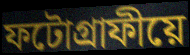
ফটোগ্ৰাফীয়ে